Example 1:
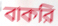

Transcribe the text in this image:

বাকরি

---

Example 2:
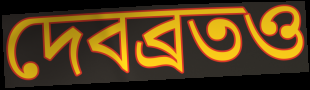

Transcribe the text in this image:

দেবব্রতও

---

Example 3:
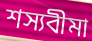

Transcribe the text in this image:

শস্যবীমা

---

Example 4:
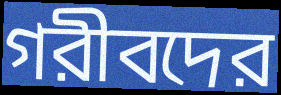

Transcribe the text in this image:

গরীবদের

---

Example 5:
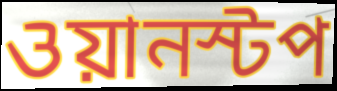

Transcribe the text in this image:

ওয়ানস্টপ